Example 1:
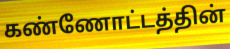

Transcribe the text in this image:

கண்ணோட்டத்தின்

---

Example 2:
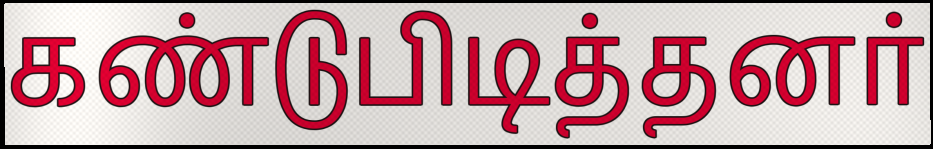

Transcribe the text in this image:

கண்டுபிடித்தனர்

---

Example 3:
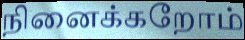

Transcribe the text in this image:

நினைக்கறோம்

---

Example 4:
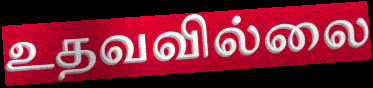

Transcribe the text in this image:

உதவவில்லை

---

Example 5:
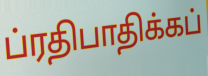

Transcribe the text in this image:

ப்ரதிபாதிக்கப்